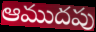
ఆముదపు